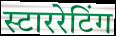
स्टाररेटिंग